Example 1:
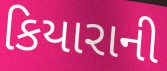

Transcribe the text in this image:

કિયારાની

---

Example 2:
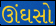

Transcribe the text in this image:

ઊંઘસો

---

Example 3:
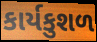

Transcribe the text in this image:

કાર્યકુશળ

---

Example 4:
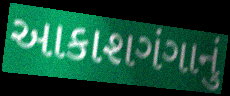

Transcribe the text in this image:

આકાશગંગાનું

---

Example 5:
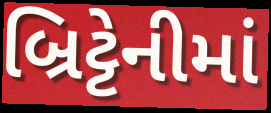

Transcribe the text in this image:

બ્રિટ્ટેનીમાં